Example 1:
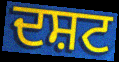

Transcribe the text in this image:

ਦਸ਼ਟ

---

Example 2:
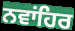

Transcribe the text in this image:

ਨਵਾਂਹਿਰ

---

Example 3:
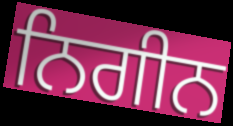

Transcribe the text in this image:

ਨਿਗੀਨ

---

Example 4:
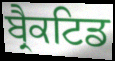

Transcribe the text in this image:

ਬ੍ਰੈਕਟਿਡ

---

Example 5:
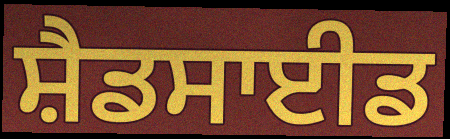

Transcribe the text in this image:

ਸ਼ੈਡਸਾਈਡ